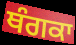
ਥੰਗਕਾ